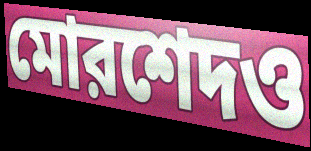
মোরশেদও